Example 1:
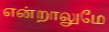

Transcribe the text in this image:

என்றாலுமே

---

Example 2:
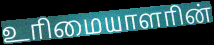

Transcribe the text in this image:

உரிமையாளரின்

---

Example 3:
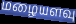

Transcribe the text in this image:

மழையளவு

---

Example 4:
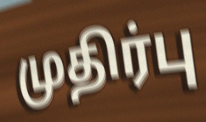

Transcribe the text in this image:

முதிர்பு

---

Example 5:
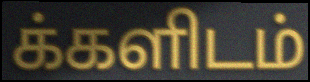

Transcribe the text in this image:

க்களிடம்